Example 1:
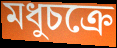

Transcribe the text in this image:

মধুচক্রে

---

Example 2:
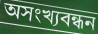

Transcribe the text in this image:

অসংখ্যবন্ধন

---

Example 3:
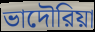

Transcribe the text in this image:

ভাদৌরিয়া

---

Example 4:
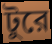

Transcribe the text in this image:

টুরে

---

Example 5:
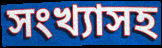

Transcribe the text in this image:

সংখ্যাসহ